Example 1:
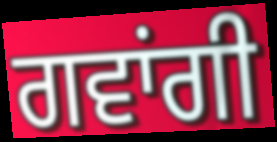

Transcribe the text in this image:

ਗਵਾਂਗੀ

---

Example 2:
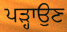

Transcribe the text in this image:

ਪੜ੍ਹਾਉਣ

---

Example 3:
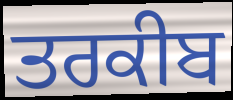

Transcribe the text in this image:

ਤਰਕੀਬ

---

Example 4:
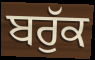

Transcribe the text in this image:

ਬਰੁੱਕ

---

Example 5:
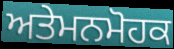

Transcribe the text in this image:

ਅਤੇਮਨਮੋਹਕ